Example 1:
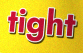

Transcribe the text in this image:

tight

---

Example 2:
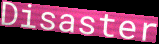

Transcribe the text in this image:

Disaster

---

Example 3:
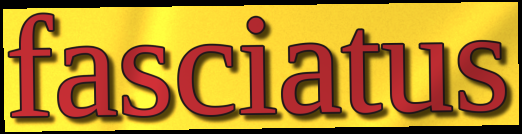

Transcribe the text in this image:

fasciatus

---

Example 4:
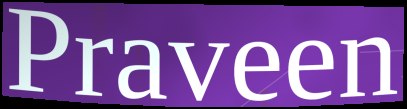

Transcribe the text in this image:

Praveen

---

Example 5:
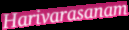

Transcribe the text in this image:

Harivarasanam